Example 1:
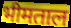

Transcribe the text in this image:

भीमताल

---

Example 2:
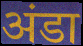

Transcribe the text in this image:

अंडा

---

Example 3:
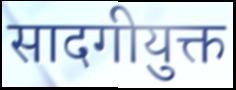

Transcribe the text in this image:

सादगीयुक्त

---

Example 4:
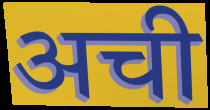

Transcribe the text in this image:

अची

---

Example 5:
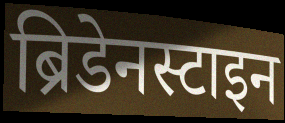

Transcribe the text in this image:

ब्रिडेनस्टाइन